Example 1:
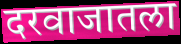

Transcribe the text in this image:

दरवाजातला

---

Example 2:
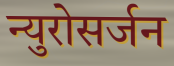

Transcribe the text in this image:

न्युरोसर्जन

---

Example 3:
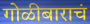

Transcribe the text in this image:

गोळीबाराचं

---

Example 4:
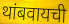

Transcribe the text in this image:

थांबवायची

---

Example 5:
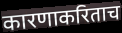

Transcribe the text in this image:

कारणाकरिताच